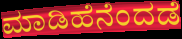
ಮಾಡಿಹೆನೆಂದಡೆ